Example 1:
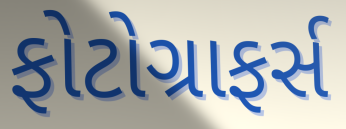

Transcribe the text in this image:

ફોટોગ્રાફર્સ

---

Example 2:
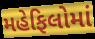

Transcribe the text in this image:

મહેફિલોમાં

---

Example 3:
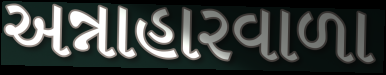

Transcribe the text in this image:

અન્નાહારવાળા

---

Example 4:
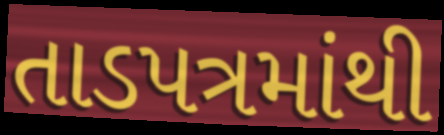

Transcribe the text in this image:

તાડપત્રમાંથી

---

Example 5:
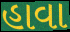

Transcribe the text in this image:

હાવા